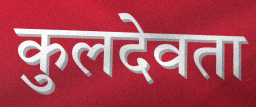
कुलदेवता